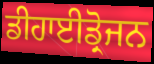
ਡੀਹਾਈਡ੍ਰੋਜਨ